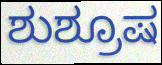
ಶುಶ್ರೂಷ